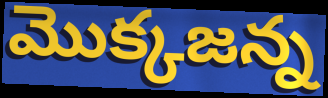
మొక్కజన్న